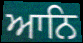
ਆਨਿ